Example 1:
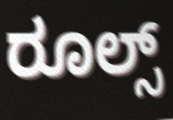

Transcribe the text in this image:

ರೂಲ್ಸ್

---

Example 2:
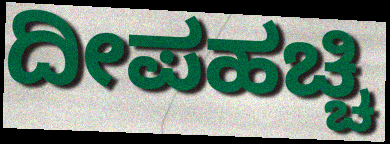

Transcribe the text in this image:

ದೀಪಹಚ್ಚಿ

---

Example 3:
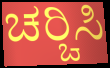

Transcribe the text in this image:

ಚರ‍್ಚಿಸಿ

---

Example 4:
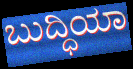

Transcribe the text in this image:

ಬುದ್ಧಿಯಾ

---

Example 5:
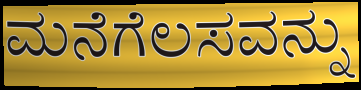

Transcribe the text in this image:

ಮನೆಗೆಲಸವನ್ನು